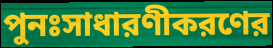
পুনঃসাধারণীকরণের